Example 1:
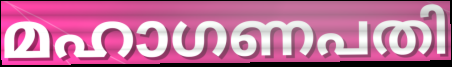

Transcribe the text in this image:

മഹാഗണപതി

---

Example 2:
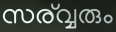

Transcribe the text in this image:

സര്വ്വരും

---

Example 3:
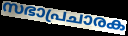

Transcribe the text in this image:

സഭാപ്രചാരക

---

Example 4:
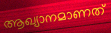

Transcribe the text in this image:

ആഖ്യാനമാണത്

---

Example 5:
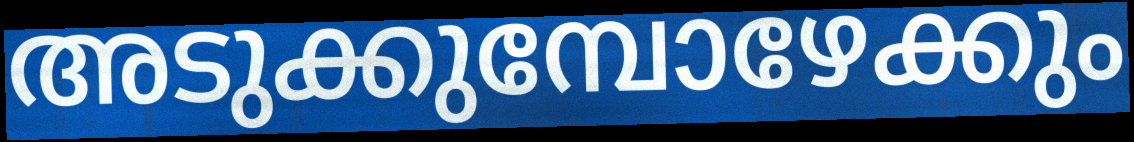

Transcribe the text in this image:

അടുക്കുമ്പോഴേക്കും